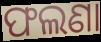
ଫଲଣା